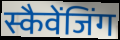
स्कैवेंजिंग